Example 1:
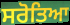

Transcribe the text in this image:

ਸਰੋਤਿਆ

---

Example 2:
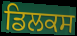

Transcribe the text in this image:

ਡਿਲਕਸ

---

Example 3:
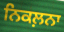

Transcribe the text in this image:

ਨਿਕਲ਼ਨਾ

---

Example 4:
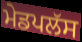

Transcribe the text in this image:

ਮੇਡਪਲੱਸ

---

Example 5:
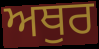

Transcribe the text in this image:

ਅਥੁਰ